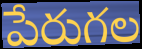
పేరుగల